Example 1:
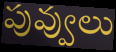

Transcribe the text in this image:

పువ్వులు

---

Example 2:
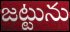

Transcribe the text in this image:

జట్టును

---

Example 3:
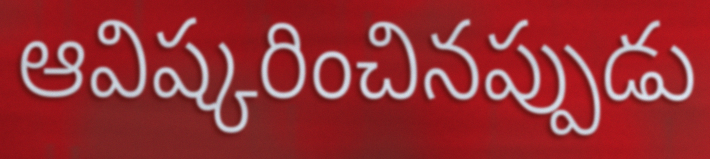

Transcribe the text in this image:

ఆవిష్కరించినప్పుడు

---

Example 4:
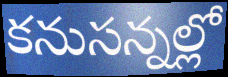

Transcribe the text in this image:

కనుసన్నల్లో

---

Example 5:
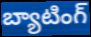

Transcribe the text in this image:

బ్యాటింగ్